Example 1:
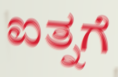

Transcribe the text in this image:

ಐತ್ನಗೆ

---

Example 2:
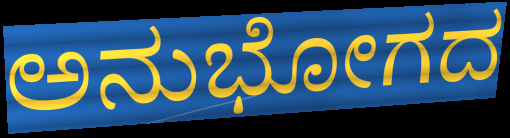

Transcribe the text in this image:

ಅನುಭೋಗದ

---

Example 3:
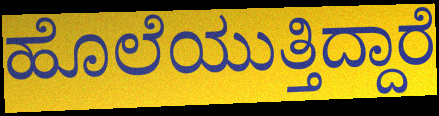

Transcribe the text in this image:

ಹೊಲೆಯುತ್ತಿದ್ದಾರೆ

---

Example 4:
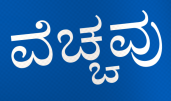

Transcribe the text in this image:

ವೆಚ್ಚವು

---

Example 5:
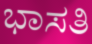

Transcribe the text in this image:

ಭಾಸತಿ